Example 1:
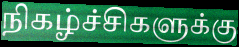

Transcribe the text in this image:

நிகழ்ச்சிகளுக்கு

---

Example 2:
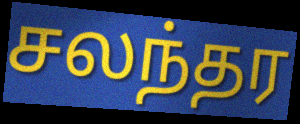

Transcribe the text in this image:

சலந்தர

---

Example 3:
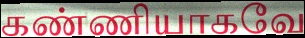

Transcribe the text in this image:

கண்ணியாகவே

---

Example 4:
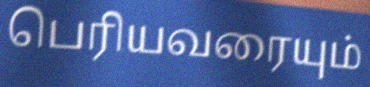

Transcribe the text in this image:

பெரியவரையும்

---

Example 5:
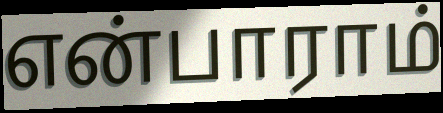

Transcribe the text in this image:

என்பாராம்